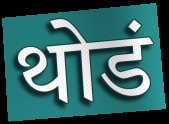
थोडं